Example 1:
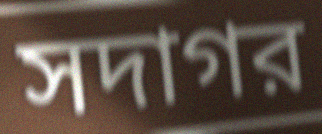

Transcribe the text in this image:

সদাগর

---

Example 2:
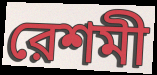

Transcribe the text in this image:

রেশমী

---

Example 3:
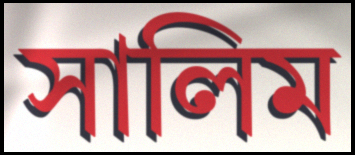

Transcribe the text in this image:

সালিম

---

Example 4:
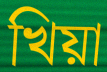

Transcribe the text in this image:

খিয়া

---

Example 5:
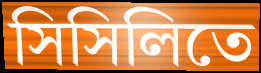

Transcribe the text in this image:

সিসিলিতে